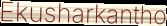
Ekusharkantho